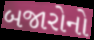
બજારોનો